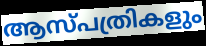
ആസ്പത്രികളും